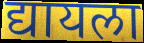
द्यायला